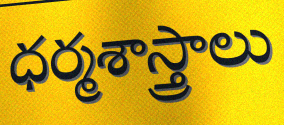
ధర్మశాస్త్రాలు